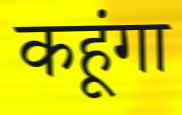
कहूंगा